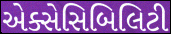
એક્સેસિબિલિટી